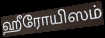
ஹீரோயிஸம்